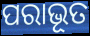
ପରାଭୂତ